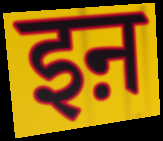
इऩ